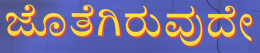
ಜೊತೆಗಿರುವುದೇ